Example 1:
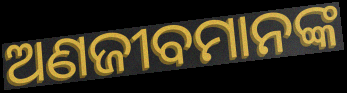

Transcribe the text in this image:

ଅଣଜୀବମାନଙ୍କ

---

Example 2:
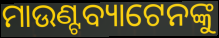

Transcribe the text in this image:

ମାଉଣ୍ଟବ୍ୟାଟେନଙ୍କୁ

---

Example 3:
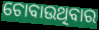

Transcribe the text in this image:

ଚୋବାଉଥିବାର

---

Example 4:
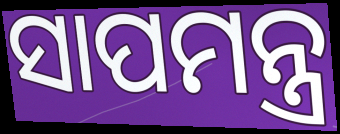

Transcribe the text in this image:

ସାପମନ୍ତ୍ର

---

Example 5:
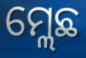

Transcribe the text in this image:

ମ୍ଲେଛ